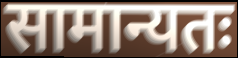
सामान्यतः